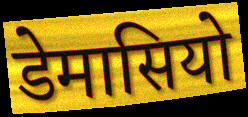
डेमासियो